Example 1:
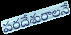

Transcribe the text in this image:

పరదేశురాలనే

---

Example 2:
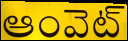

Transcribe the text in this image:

ఆంవెట్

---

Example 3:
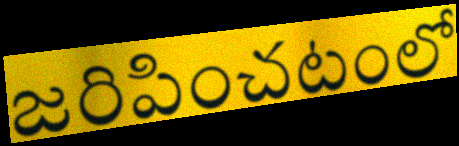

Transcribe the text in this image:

జరిపించటంలో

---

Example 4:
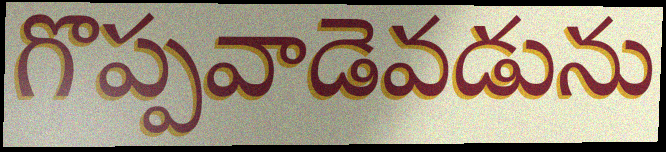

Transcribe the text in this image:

గొప్పవాడెవడును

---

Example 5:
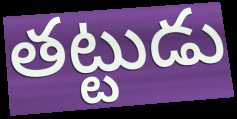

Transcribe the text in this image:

తట్టుడు